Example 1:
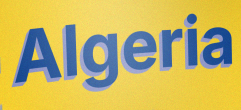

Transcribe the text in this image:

Algeria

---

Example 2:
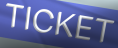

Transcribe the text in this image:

TICKET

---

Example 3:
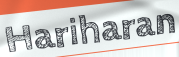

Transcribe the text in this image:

Hariharan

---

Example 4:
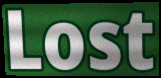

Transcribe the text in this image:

Lost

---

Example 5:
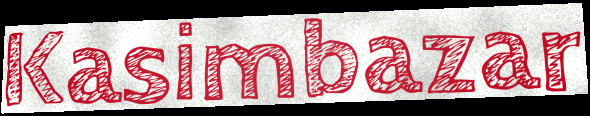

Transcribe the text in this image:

Kasimbazar